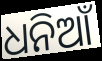
ଧନିଆଁ